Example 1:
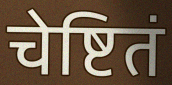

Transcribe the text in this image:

चेष्टितं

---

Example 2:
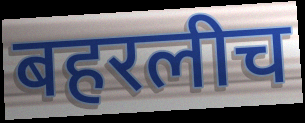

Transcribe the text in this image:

बहरलीच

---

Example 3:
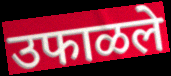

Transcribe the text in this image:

उफाळले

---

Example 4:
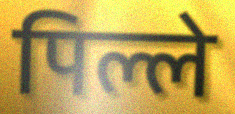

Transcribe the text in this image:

पिल्ले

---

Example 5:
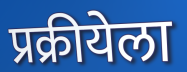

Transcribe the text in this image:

प्रक्रीयेला